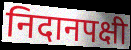
निदानपक्षी